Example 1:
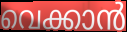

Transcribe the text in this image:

വെക്കാൻ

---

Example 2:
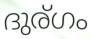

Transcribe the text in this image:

ദുര്ഗം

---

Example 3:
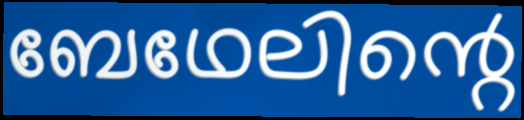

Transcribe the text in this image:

ബേഥേലിന്റെ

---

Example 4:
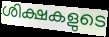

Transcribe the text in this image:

ശിക്ഷകളുടെ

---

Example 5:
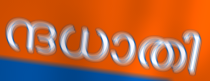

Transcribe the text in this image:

ന്ദധാതി